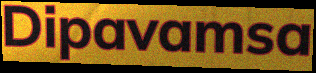
Dipavamsa